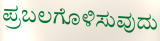
ಪ್ರಬಲಗೊಳಿಸುವುದು